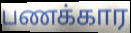
பணக்கார